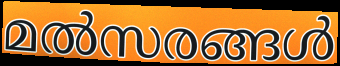
മൽസരങ്ങൾ